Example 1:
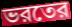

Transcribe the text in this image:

ভরতের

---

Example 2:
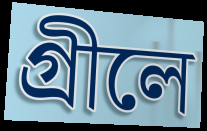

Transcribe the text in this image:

গ্রীলে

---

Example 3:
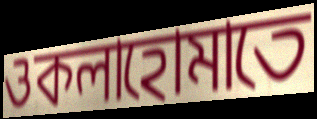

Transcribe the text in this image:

ওকলাহোমাতে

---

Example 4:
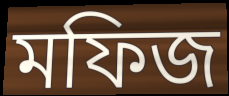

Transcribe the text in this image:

মফিজ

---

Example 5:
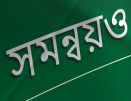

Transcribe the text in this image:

সমন্বয়ও